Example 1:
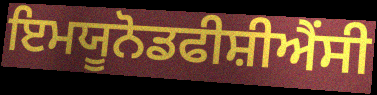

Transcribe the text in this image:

ਇਮਯੂਨੋਡਫੀਸ਼ੀਐਂਸੀ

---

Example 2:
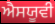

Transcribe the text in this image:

ਐਸਯੂਵੀ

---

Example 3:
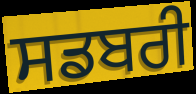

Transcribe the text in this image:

ਸਡਬਰੀ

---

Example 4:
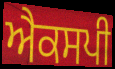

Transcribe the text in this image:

ਐਕਸਪੀ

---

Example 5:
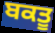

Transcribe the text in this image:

ਬਕਤੂ